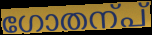
ഗോതന്പ്